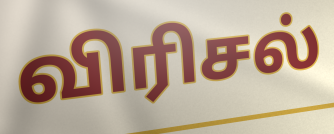
விரிசல்